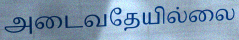
அடைவதேயில்லை